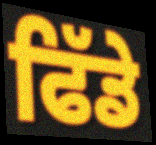
ਫਿੱਡੇ